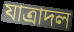
যাত্রাদল